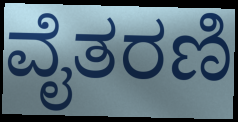
ವೈತರಣಿ